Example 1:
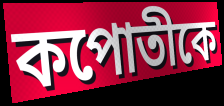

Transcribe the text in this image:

কপোতীকে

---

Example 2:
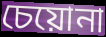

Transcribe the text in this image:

চেয়োনা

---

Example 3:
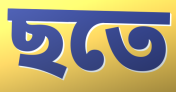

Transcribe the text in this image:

ছতে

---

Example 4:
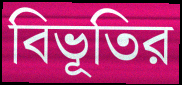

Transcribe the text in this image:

বিভূতির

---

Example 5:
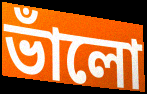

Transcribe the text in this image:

ভাঁলো